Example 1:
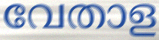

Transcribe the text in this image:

വേതാള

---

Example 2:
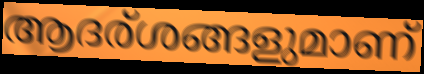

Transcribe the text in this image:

ആദര്ശങ്ങളുമാണ്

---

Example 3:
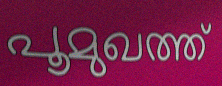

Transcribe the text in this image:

പൂമുഖത്ത്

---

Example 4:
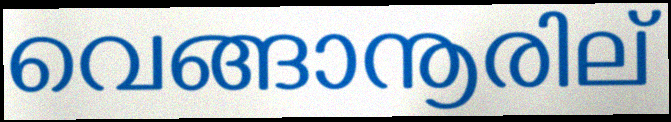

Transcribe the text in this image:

വെങ്ങാനൂരില്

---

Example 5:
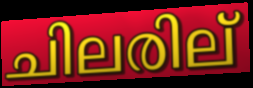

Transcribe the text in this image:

ചിലരില്